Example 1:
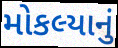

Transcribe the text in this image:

મોકલ્યાનું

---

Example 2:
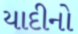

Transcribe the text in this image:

યાદીનો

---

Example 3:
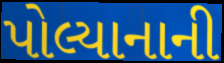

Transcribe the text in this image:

પોલ્યાનાની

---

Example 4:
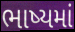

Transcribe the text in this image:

ભાષ્યમાં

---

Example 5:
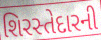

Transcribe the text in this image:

શિરસ્તેદારની